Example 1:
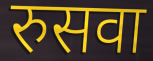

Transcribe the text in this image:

रुसवा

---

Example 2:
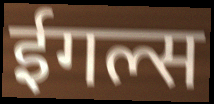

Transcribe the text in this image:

ईगल्स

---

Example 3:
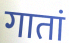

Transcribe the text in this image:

गातां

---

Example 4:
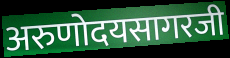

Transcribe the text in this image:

अरुणोदयसागरजी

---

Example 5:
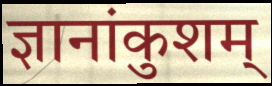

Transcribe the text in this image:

ज्ञानांकुशम्